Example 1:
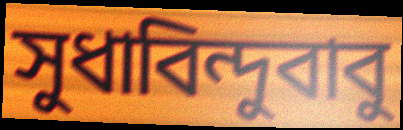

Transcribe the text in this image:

সুধাবিন্দুবাবু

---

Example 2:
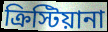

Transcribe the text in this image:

ক্রিস্টিয়ানা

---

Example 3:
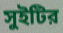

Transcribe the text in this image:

সুইটির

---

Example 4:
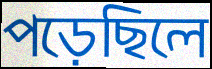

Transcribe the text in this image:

পড়েছিলে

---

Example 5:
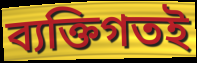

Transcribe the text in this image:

ব্যক্তিগতই